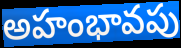
అహంభావపు